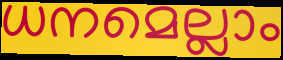
ധനമെല്ലാം